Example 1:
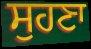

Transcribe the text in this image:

ਸੁਹਣਾ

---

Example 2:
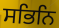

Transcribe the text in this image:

ਸਭਿਨਿ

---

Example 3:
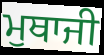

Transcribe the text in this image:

ਮੁਥਾਜੀ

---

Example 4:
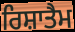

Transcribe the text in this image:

ਰਿਸ਼ਾਤੈਮ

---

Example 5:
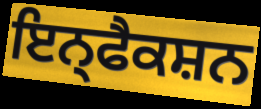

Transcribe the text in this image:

ਇਨ੍ਫੈਕਸ਼ਨ